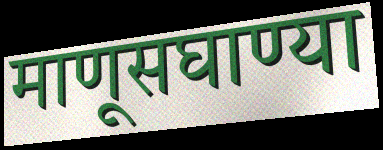
माणूसघाण्या